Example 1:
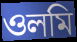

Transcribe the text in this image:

ওলমি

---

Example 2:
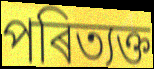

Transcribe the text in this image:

পৰিত্যক্ত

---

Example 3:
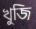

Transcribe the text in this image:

খুজি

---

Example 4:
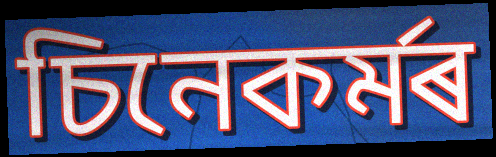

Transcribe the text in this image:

চিনেকৰ্মৰ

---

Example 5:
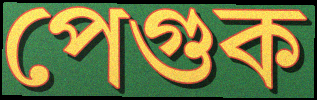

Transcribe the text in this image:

পেগুক